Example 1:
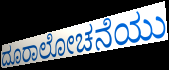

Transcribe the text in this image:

ದೂರಾಲೋಚನೆಯು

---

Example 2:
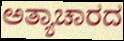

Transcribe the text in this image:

ಅತ್ಯಾಚಾರದ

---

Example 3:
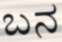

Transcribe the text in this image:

ಬನ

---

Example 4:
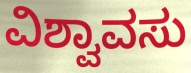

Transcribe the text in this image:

ವಿಶ್ವಾವಸು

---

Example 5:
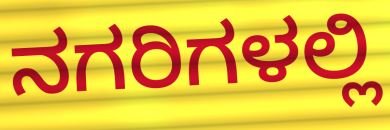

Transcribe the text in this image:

ನಗರಿಗಳಲ್ಲಿ